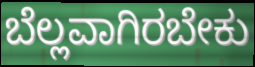
ಬೆಲ್ಲವಾಗಿರಬೇಕು